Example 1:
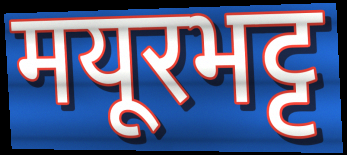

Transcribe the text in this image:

मयूरभट्ट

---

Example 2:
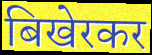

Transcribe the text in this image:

बिखेरकर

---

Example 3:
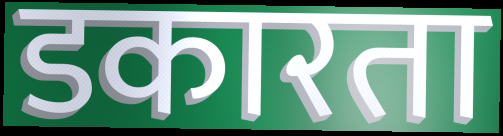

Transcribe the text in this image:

डकारता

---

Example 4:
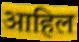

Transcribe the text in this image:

आहिल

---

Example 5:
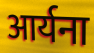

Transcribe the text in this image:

आर्यना